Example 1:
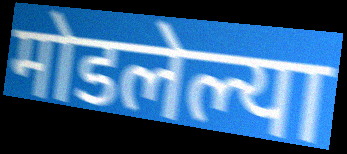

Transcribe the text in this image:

मोडलेल्या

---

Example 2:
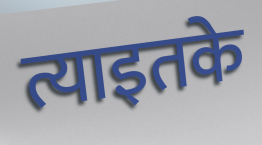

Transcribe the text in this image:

त्याइतके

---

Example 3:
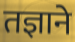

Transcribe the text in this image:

तज्ञाने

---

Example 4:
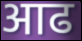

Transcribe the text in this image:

आढ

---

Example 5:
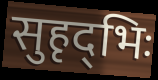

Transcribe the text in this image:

सुहृद्भिः